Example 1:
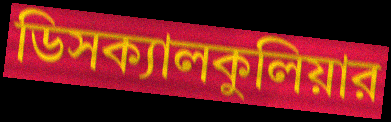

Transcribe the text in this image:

ডিসক্যালকুলিয়ার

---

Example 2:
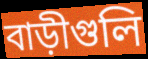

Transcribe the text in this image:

বাড়ীগুলি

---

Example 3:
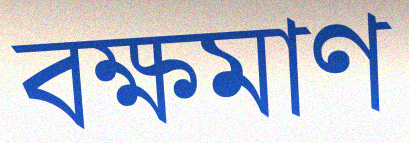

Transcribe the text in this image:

বক্ষমাণ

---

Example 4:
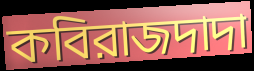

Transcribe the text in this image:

কবিরাজদাদা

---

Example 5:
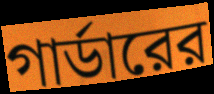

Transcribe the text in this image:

গার্ডারের